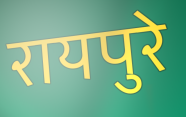
रायपुरे